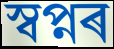
স্বপ্নৰ